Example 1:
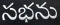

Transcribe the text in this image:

సభను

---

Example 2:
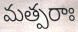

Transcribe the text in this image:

మత్పరాః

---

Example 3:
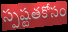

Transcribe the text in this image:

స్పష్టతకోసం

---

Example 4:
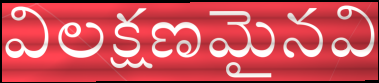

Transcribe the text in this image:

విలక్షణమైనవి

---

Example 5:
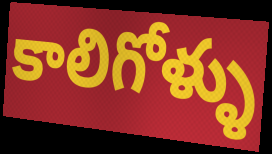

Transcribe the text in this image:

కాలిగోళ్ళు